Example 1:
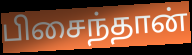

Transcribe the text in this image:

பிசைந்தான்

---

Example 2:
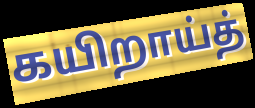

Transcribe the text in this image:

கயிறாய்த்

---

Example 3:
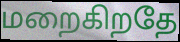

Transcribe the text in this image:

மறைகிறதே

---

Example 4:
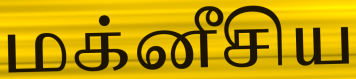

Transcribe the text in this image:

மக்னீசிய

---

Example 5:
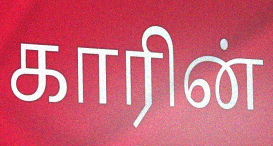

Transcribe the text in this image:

காரின்